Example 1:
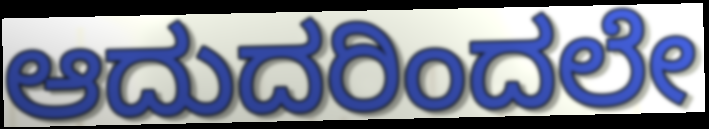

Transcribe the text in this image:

ಆದುದರಿಂದಲೇ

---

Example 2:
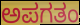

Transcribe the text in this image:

ಅಪಗತಂ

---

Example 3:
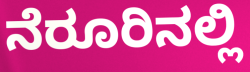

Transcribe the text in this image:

ನೆರೂರಿನಲ್ಲಿ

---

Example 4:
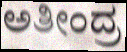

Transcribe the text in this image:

ಅತೀಂದ್ರ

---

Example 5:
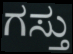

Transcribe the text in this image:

ಗಸ್ತು